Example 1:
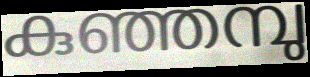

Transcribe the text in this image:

കുഞ്ഞമ്പു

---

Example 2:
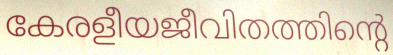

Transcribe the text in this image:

കേരളീയജീവിതത്തിന്റെ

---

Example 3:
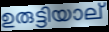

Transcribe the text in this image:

ഉരുട്ടിയാല്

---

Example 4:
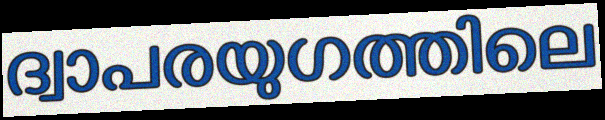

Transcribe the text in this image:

ദ്വാപരയുഗത്തിലെ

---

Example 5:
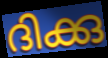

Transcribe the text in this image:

ദിക്കു